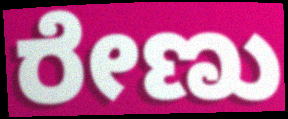
ರೇಣು